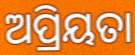
ଅପ୍ରିୟତା